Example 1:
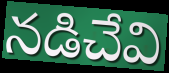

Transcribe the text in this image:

నడిచేవి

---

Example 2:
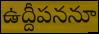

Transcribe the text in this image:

ఉద్దీపననూ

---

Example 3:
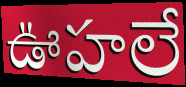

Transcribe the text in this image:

ఊహలే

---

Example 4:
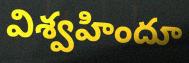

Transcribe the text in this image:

విశ్వహిందూ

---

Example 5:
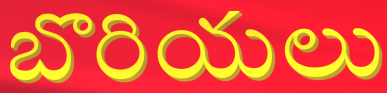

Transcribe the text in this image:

బొరియలు